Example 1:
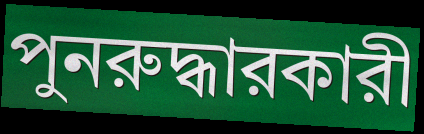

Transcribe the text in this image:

পুনরুদ্ধারকারী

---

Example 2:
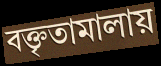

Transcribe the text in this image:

বক্তৃতামালায়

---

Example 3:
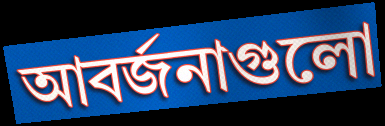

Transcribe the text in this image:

আবর্জনাগুলো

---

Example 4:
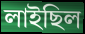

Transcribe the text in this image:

লাইছিল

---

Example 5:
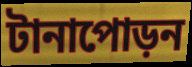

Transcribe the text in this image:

টানাপোড়ন